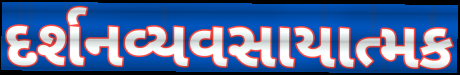
દર્શનવ્યવસાયાત્મક